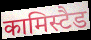
कामिस्टैड